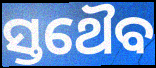
ସ୍ତଥୈବ